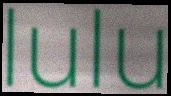
lulu